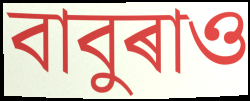
বাবুৰাও